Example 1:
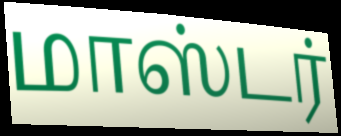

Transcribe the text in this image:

மாஸ்டர்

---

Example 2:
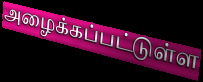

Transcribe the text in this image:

அழைக்கப்பட்டுள்ள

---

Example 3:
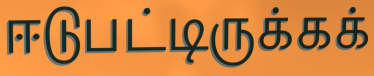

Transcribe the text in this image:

ஈடுபட்டிருக்கக்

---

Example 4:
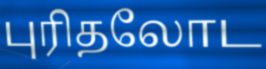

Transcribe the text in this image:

புரிதலோட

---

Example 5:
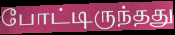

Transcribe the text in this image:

போட்டிருந்தது